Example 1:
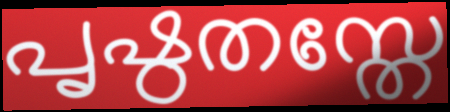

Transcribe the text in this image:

പൃഷ്ഠതസ്തേ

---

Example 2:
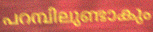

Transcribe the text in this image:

പറമ്പിലുണ്ടാകും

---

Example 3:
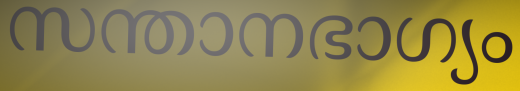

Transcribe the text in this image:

സന്താനഭാഗ്യം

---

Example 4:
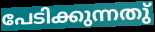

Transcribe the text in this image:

പേടിക്കുന്നതു്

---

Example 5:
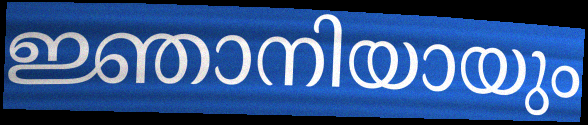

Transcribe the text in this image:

ജ്ഞാനിയായും